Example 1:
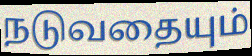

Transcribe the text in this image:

நடுவதையும்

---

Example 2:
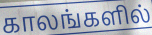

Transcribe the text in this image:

காலங்களில்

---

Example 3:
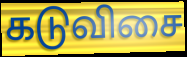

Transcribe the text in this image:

கடுவிசை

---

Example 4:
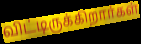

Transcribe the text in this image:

விட்டிருக்கிறார்கள்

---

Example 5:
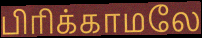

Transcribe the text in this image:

பிரிக்காமலே